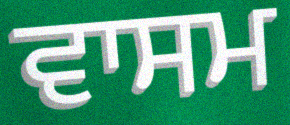
ਵਾਸਮ